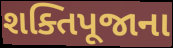
શક્તિપૂજાના